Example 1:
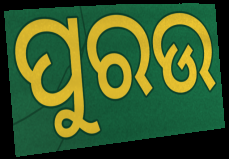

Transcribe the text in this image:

ପୁରଉ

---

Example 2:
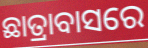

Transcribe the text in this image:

ଛାତ୍ରାବାସରେ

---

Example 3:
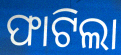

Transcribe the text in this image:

ଫାଟିଲା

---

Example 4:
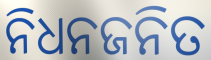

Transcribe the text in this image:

ନିଧନଜନିତ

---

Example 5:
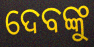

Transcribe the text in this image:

ଦେବଙ୍କୁ